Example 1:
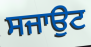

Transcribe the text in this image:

ਸਜਾਉਟ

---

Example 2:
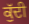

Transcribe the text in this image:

ਕੁੱਦੀ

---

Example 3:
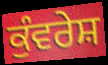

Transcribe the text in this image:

ਕੁੰਵਰੇਸ਼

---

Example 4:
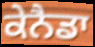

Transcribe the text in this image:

ਕੇਨੈਡਾ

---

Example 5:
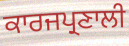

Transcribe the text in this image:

ਕਾਰਜਪ੍ਰਣਾਲੀ